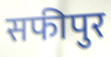
सफीपुर